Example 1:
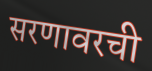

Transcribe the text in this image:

सरणावरची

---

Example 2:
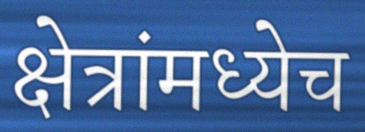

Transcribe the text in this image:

क्षेत्रांमध्येच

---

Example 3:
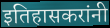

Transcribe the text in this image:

इतिहासकरांनी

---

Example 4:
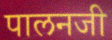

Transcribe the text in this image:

पालनजी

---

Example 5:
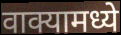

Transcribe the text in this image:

वाक्यामध्ये